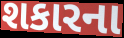
શકારના